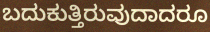
ಬದುಕುತ್ತಿರುವುದಾದರೂ